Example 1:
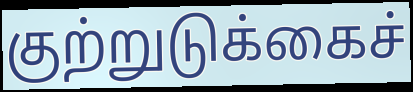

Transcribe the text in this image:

குற்றுடுக்கைச்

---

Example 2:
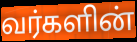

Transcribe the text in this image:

வர்களின்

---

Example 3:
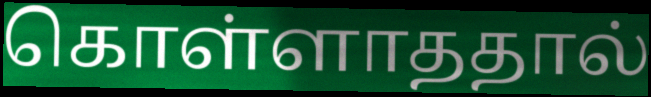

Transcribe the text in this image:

கொள்ளாததால்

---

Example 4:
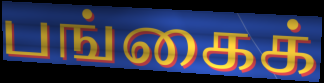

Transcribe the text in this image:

பங்கைக்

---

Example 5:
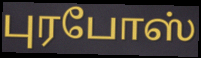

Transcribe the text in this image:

புரபோஸ்